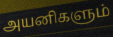
அயனிகளும்